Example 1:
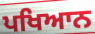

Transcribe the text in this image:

ਪਖਿਆਨ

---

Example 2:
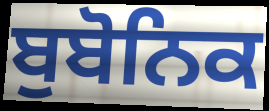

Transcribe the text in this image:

ਬੁਬੋਨਿਕ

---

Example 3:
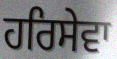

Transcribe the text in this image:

ਹਰਿਸੇਵਾ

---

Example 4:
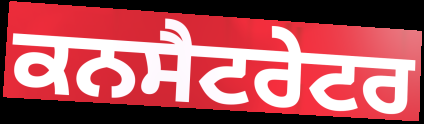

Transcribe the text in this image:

ਕਨਸੈਟਰੇਟਰ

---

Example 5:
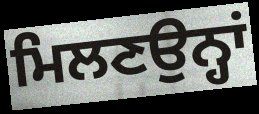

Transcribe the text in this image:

ਮਿਲਣਉਨ੍ਹਾਂ